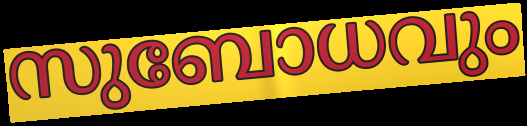
സുബോധവും